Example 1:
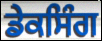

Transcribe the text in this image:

ਡੇਕਸਿੰਗ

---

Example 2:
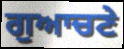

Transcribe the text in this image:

ਗੁਆਚਣੇ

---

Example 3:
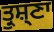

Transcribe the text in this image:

ਤ੍ਰੁਸ਼੍ਣਾ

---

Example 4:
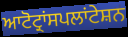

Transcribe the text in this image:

ਆਟੋਟ੍ਰਾਂਸਪਲਾਂਟੇਸ਼ਨ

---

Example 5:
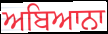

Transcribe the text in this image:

ਅਬਿਆਨਾ